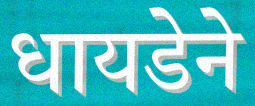
धायडेने